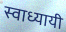
स्वाध्यायी